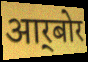
आर्बोर